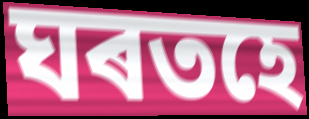
ঘৰতহে